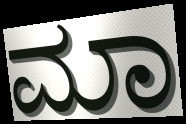
ಮಾ